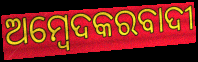
ଅମ୍ବେଦକରବାଦୀ